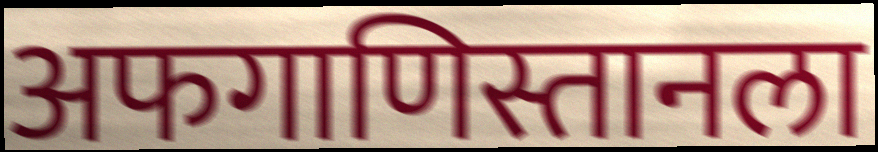
अफगाणिस्तानला